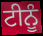
ਟੀਨੂੰ